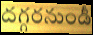
దగ్గరనుండీ